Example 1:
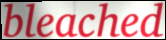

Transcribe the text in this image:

bleached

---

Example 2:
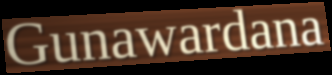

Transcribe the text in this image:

Gunawardana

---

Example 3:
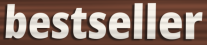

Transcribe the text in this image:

bestseller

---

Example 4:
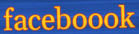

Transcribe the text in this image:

faceboook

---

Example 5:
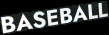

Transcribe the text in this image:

BASEBALL